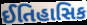
ઈતિહાસિક